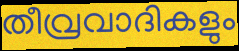
തീവ്രവാദികളും